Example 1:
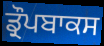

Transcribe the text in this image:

ਡ੍ਰੌਪਬਾਕਸ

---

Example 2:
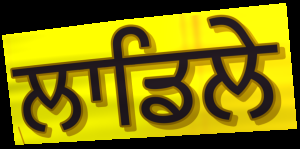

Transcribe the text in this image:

ਲਾਡਿਲੇ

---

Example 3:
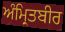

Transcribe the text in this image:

ਅੰਮ੍ਰਿਤਬੀਰ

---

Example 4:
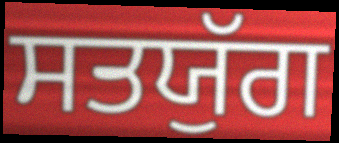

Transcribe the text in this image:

ਸਤਯੁੱਗ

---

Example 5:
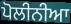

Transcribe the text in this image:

ਪੋਲੀਨੀਆ